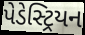
પેડેસ્ટ્રિયન